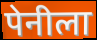
पेनीला